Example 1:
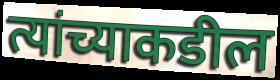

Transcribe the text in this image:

त्यांच्याकडील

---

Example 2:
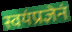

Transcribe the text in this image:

स्वयंप्रज्ञेनं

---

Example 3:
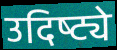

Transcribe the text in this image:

उदिष्ट्ये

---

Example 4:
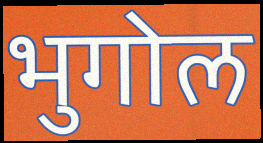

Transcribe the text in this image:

भुगोल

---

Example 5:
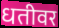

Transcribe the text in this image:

धतीवर